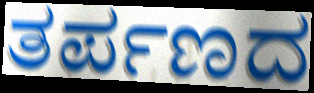
ತರ್ಪಣದ